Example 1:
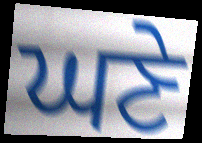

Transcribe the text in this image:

ਘਣੇ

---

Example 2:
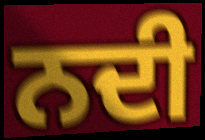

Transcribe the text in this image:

ਨਦੀ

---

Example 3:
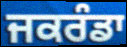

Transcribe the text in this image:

ਜਕਰੰਡਾ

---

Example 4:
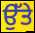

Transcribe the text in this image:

ਉੱਤੇ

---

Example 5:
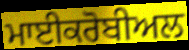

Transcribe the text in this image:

ਮਾਈਕਰੋਬੀਅਲ